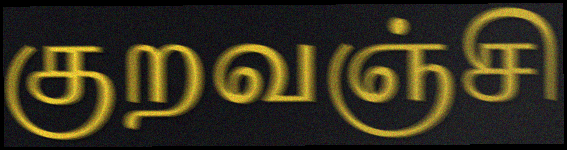
குறவஞ்சி